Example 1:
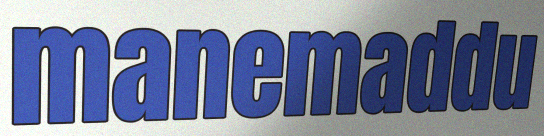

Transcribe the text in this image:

manemaddu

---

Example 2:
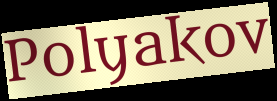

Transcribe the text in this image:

Polyakov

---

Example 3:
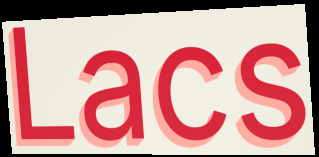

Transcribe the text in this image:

Lacs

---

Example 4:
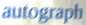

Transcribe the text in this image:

autograph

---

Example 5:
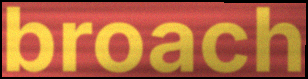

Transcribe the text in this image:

broach